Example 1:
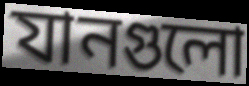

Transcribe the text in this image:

যানগুলো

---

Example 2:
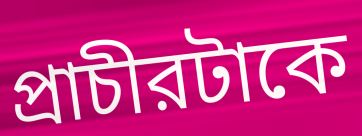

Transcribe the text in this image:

প্রাচীরটাকে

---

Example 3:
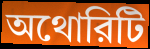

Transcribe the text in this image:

অথোরিটি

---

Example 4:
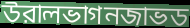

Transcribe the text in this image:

উরালভাগনজাভড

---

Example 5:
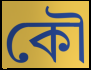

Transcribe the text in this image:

কৌ